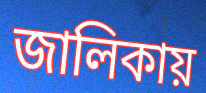
জালিকায়